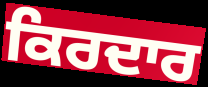
ਕਿਰਦਾਰ